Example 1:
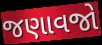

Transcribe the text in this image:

જણાવજો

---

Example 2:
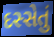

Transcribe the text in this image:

દસ્સેતું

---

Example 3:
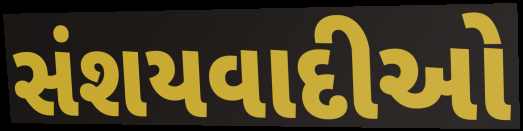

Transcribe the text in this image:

સંશયવાદીઓ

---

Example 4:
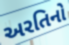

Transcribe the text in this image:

અરતિનો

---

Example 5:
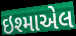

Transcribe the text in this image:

ઇશ્માએલ